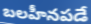
బలహీనపడే